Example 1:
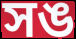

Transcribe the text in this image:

সঙ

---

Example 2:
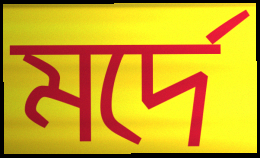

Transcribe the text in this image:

মর্দে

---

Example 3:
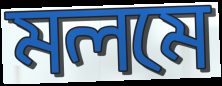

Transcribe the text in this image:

মলমে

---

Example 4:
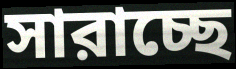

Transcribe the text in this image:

সারাচ্ছে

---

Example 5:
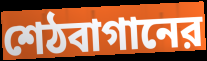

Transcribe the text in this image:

শেঠবাগানের